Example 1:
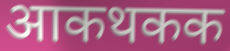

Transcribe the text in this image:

आकथकक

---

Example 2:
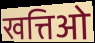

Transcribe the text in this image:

खत्तिओ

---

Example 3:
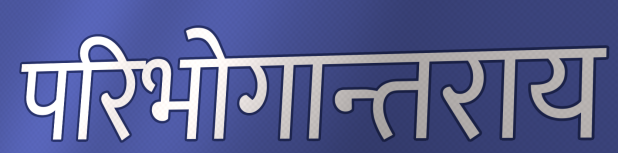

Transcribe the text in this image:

परिभोगान्तराय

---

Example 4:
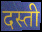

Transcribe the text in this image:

दस्ती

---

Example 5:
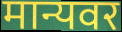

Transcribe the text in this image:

मान्‍यवर